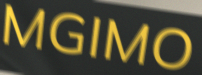
MGIMO